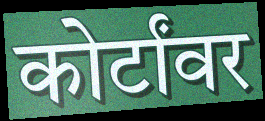
कोर्टांवर